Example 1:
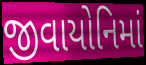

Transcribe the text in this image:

જીવાયોનિમાં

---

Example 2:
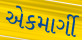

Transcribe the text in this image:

એકમાર્ગી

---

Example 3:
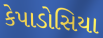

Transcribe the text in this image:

કેપાડોસિયા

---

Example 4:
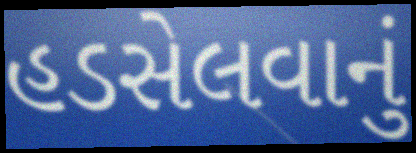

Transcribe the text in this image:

હડસેલવાનું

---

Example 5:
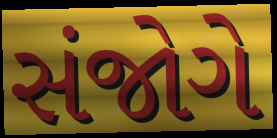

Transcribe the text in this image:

સંજોગે